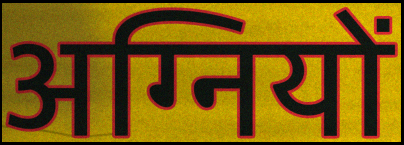
अग्नियों